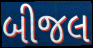
બીજલ